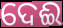
ଦେଈ